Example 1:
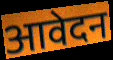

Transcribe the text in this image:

आवेदन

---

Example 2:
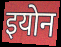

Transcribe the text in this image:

इयोन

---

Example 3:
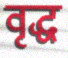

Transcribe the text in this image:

वृद्ध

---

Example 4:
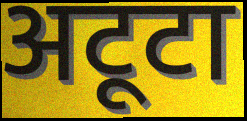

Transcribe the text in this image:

अटूटा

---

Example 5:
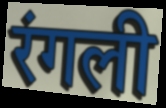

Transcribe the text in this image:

रंगली